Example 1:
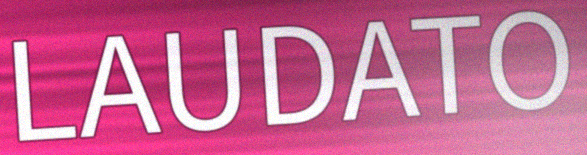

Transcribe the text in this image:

LAUDATO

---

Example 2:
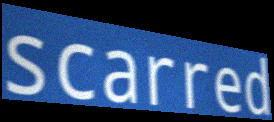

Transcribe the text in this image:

scarred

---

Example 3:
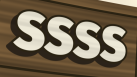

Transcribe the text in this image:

ssss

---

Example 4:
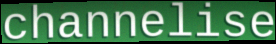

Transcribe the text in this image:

channelise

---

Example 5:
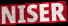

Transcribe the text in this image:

NISER